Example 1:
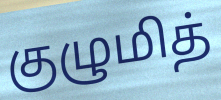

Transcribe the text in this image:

குழுமித்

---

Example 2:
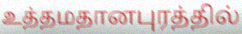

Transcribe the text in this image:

உத்தமதானபுரத்தில்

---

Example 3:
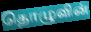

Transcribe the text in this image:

தொழுவின்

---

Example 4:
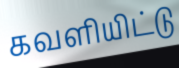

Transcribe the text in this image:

கவளியிட்டு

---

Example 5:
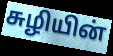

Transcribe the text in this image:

சுழியின்